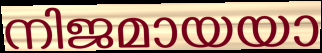
നിജമായയാ